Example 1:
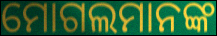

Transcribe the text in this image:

ମୋଗଲମାନଙ୍କ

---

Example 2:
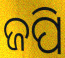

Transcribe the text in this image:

ଜପି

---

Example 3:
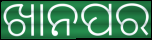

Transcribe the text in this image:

ଖାନପର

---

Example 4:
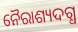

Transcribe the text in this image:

ନୈରାଶ୍ୟଦଗ୍ଧ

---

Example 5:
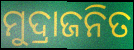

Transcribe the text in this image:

ମୁଦ୍ରାଜନିତ